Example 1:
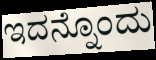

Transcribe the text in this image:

ಇದನ್ನೊಂದು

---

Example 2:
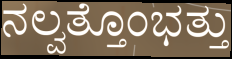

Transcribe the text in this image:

ನಲ್ವತ್ತೊಂಭತ್ತು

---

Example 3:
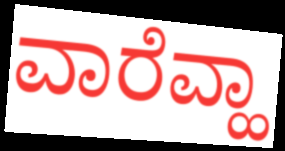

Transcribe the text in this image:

ವಾರೆವ್ಹಾ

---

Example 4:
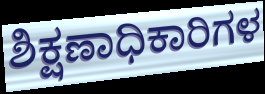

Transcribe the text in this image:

ಶಿಕ್ಷಣಾಧಿಕಾರಿಗಳ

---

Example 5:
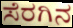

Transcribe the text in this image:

ಸೆರಗಿನ